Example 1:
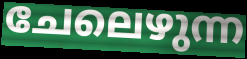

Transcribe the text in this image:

ചേലെഴുന്ന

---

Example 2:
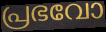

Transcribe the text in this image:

പ്രഭവോ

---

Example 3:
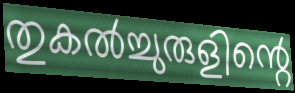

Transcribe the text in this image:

തുകൽച്ചുരുളിന്റെ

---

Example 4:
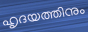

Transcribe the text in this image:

ഹൃദയത്തിനും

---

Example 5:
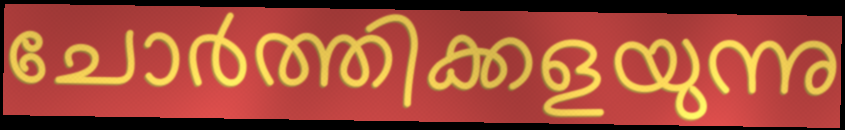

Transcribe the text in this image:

ചോർത്തിക്കളയുന്നു